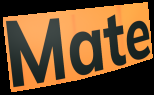
Mate